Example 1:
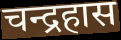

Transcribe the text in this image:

चन्द्रहास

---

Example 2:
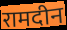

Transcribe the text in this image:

रामदीन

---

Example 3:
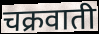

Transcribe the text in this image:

चक्रवाती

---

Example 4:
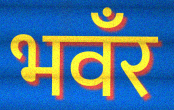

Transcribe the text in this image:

भवँर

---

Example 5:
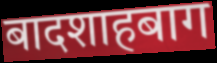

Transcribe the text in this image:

बादशाहबाग